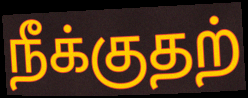
நீக்குதற்